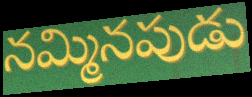
నమ్మినపుడు